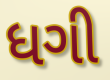
ધગી